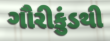
ગૌરીકુંડથી